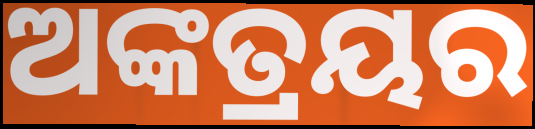
ଅଙ୍କତ୍ରୟର